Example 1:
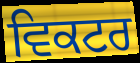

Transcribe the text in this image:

ਵਿਕਟਰ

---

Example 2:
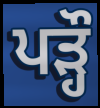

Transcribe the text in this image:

ਪੜ੍ਹੌ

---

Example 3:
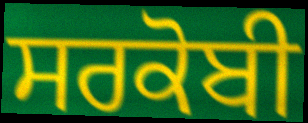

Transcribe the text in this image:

ਸਰਕੋਬੀ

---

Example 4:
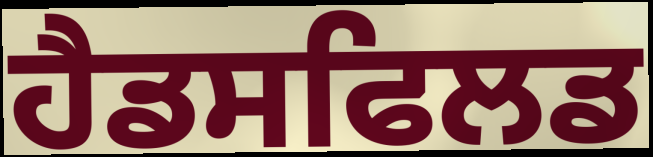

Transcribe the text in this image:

ਹੈਡਸਫਿਲਡ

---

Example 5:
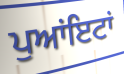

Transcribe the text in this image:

ਪੁਆਂਇਟਾਂ